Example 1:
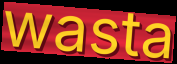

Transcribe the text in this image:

wasta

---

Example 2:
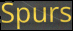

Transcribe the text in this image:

Spurs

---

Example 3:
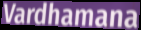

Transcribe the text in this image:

Vardhamana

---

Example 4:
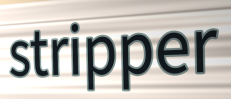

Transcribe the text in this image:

stripper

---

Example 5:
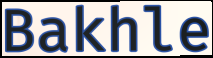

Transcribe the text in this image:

Bakhle